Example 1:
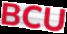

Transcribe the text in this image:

BCU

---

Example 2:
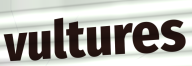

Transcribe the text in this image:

vultures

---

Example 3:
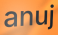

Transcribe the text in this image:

anuj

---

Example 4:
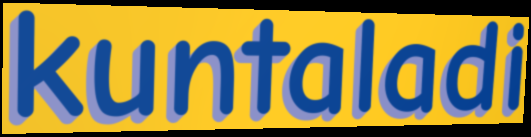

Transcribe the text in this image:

kuntaladi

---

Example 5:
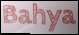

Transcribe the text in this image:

Bahya